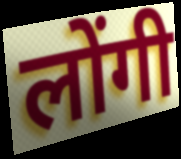
लोंगी